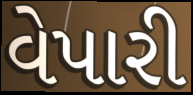
વેપારી